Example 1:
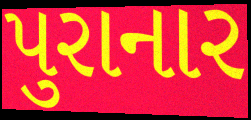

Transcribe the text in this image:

પુરાનાર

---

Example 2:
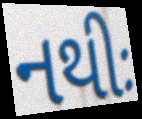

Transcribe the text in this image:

નથીઃ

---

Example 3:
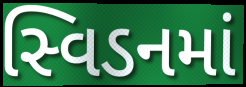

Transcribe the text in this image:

સ્વિડનમાં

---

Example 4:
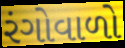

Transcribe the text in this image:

રંગોવાળો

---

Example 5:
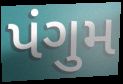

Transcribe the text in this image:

પંગુમ